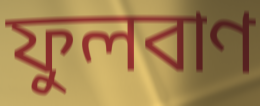
ফুলবাণ